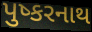
પુષ્કરનાથ